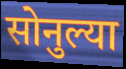
सोनुल्या